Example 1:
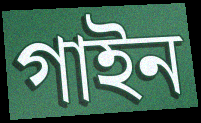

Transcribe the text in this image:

গাইন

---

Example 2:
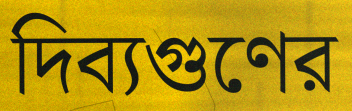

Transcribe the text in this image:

দিব্যগুণের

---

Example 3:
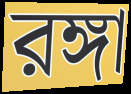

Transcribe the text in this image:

রঙ্গা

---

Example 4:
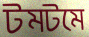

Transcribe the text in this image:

টমটমে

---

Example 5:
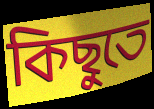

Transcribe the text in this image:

কিছুতে